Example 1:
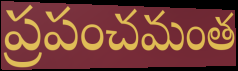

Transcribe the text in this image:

ప్రపంచమంత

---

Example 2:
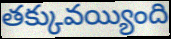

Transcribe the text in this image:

తక్కువయ్యింది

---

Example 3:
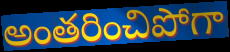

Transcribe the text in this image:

అంతరించిపోగా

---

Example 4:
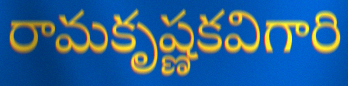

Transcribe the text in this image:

రామకృష్ణకవిగారి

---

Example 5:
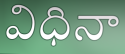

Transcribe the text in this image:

విధినా